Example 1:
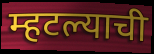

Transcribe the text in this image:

म्हटल्याची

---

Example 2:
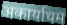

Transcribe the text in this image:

अकायथिम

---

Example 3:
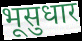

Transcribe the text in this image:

भूसुधार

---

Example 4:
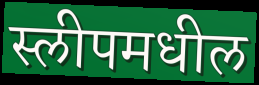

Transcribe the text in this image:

स्लीपमधील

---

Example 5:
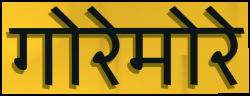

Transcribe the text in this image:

गोरेमोरे